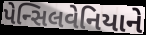
પેન્સિલવેનિયાને